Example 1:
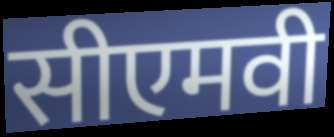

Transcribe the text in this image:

सीएमवी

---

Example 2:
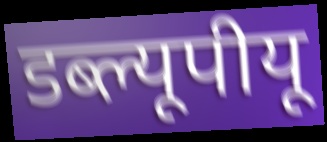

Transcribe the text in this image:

डब्ल्यूपीयू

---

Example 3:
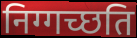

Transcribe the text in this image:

निग्गच्छति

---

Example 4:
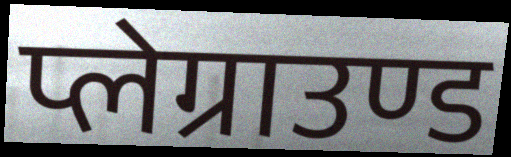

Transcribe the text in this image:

प्लेग्राउण्ड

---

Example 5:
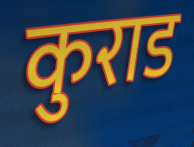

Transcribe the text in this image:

कुराड